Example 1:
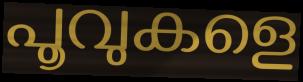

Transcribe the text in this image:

പൂവുകളെ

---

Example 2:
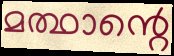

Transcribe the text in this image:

മത്ഥാന്റെ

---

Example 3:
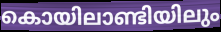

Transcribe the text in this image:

കൊയിലാണ്ടിയിലും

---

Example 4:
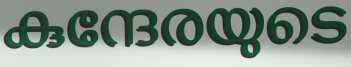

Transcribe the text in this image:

കുന്ദേരയുടെ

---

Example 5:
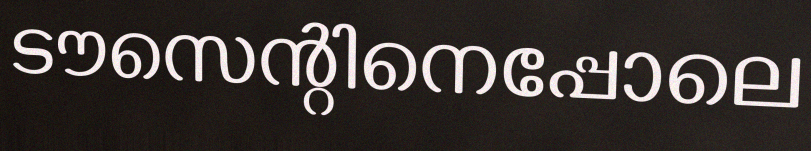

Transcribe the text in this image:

ടൗസെന്റിനെപ്പോലെ